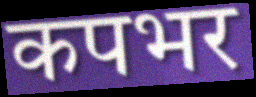
कपभर